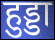
हुड्डा